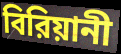
বিরিয়ানী